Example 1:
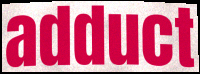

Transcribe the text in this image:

adduct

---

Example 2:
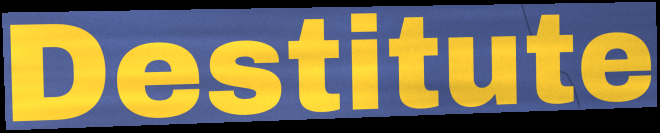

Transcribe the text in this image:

Destitute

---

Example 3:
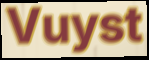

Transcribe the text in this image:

Vuyst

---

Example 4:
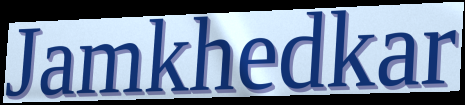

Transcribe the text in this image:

Jamkhedkar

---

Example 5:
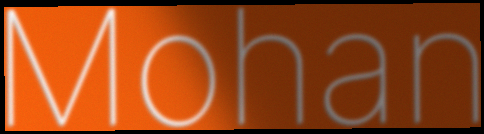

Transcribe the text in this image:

Mohan